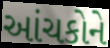
આંચકોને